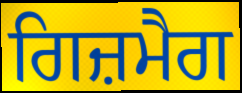
ਗਿਜ਼ਮੈਗ